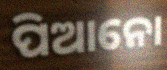
ପିଆନୋ